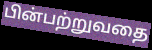
பின்பற்றுவதை